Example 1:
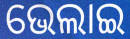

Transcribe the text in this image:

ଭେଲାଇ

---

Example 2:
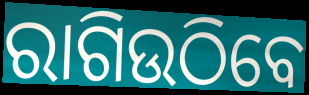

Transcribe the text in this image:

ରାଗିଉଠିବେ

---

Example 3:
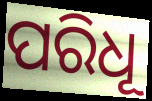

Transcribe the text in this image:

ପରିଧୂ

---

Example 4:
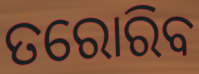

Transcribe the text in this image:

ତରୋରିବ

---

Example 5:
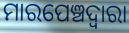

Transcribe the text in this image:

ମାରପେଞ୍ଚଦ୍ବାରା